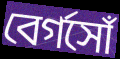
বের্গসোঁ